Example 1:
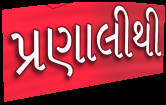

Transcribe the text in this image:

પ્રણાલીથી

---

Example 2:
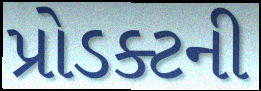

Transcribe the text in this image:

પ્રોડક્ટની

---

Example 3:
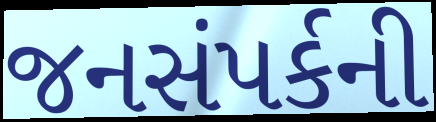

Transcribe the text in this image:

જનસંપર્કની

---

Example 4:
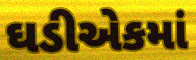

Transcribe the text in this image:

ઘડીએકમાં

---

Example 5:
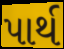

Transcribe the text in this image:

પાર્થ